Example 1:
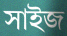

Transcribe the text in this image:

সাইজ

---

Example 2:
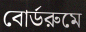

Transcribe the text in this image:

বোর্ডরুমে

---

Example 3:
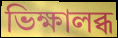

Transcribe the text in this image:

ভিক্ষালব্ধ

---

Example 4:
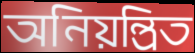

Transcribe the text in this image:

অনিয়ন্ত্রিত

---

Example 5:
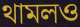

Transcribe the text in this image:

থামলও